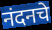
नंदनचे